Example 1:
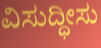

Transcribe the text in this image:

ವಿಸುದ್ಧೀಸು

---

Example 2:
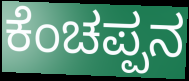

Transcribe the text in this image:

ಕೆಂಚಪ್ಪನ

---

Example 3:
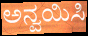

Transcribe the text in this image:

ಅನ್ವಯಿಸಿ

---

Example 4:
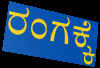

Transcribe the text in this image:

ರಂಗಕ್ಕೆ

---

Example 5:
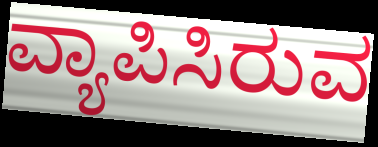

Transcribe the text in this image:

ವ್ಯಾಪಿಸಿರುವ